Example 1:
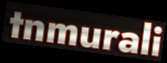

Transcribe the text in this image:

tnmurali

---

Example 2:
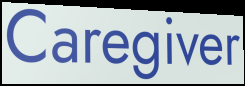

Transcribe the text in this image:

Caregiver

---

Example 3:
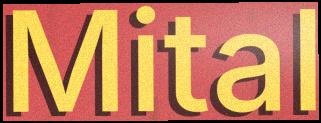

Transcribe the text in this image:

Mital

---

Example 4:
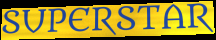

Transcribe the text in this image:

SUPERSTAR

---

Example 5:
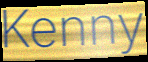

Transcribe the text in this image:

Kenny